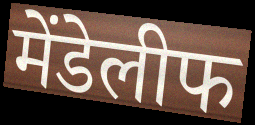
मेंडेलीफ